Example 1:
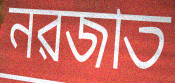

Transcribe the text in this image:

নৱজাত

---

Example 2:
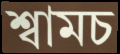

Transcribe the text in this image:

শ্বামচ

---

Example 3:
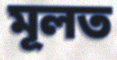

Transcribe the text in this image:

মূলত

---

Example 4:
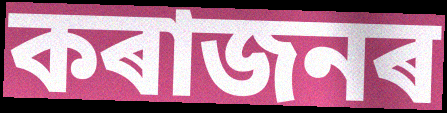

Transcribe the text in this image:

কৰাজনৰ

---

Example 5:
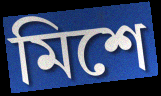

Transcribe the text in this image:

মিশে